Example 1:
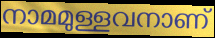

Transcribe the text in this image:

നാമമുള്ളവനാണ്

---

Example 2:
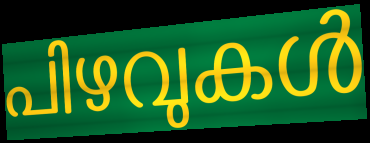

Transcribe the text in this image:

പിഴവുകൾ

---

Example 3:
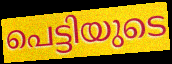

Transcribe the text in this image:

പെട്ടിയുടെ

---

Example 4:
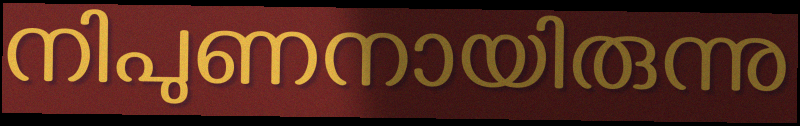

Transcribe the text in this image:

നിപുണനായിരുന്നു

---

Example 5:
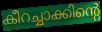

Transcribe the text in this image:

കീറച്ചാക്കിന്റെ